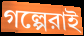
গল্পেরাই